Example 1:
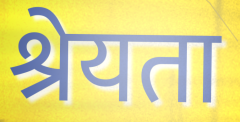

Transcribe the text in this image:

श्रेयता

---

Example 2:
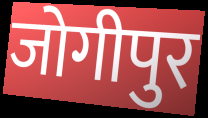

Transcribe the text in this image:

जोगीपुर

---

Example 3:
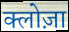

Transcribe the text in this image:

क्लोज़ा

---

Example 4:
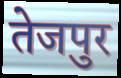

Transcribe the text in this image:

तेजपुर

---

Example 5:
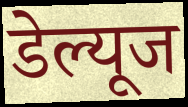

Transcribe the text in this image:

डेल्यूज